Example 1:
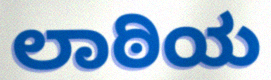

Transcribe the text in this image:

ಲಾಠಿಯ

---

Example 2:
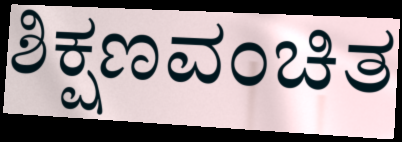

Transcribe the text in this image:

ಶಿಕ್ಷಣವಂಚಿತ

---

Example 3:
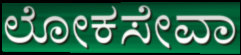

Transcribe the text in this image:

ಲೋಕಸೇವಾ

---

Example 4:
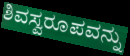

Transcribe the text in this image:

ಶಿವಸ್ವರೂಪವನ್ನು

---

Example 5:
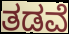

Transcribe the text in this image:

ತಡವೆ